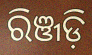
ରିଞ୍ଜଡ଼ି